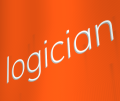
logician